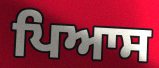
ਪਿਆਸ